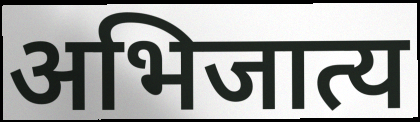
अभिजात्य